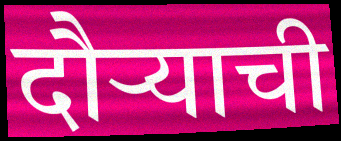
दौर्‍याची